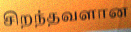
சிறந்தவளான